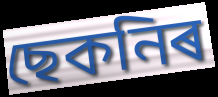
ছেকনিৰ